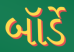
બૉર્ડે